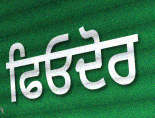
ਫਿਓਦੋਰ